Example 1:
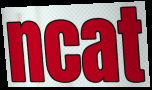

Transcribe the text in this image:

ncat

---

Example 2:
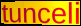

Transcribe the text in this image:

tunceli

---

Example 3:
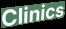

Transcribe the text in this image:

Clinics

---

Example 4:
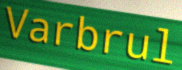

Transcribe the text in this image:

Varbrul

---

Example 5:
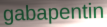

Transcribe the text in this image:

gabapentin